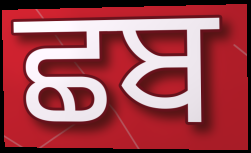
ਛਬ